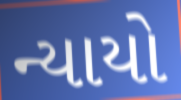
ન્યાયો